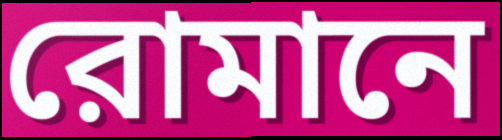
রোমানে